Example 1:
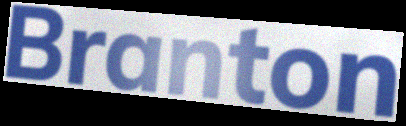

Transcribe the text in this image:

Branton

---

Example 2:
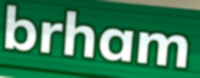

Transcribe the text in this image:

brham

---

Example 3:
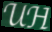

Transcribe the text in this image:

UH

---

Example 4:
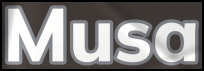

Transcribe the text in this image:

Musa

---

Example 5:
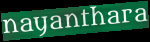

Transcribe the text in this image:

nayanthara